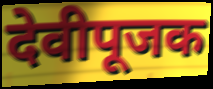
देवीपूजक